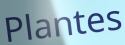
Plantes